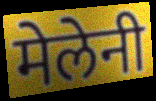
मेलेनी